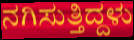
ನಗಿಸುತ್ತಿದ್ದಳು